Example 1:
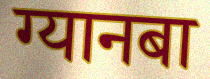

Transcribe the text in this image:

ग्यानबा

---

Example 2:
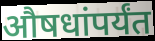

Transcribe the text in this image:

औषधांपर्यंत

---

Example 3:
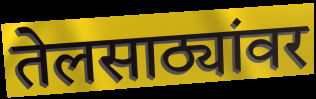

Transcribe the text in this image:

तेलसाठ्यांवर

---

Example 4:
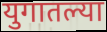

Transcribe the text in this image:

युगातल्या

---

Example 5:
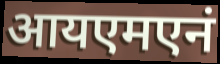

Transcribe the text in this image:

आयएमएनं